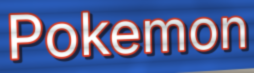
Pokemon